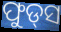
ଫୁଡ୍‌ସ